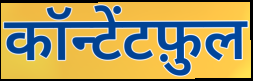
कॉन्टेंटफ़ुल